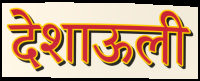
देशाऊली